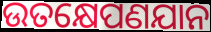
ଉତକ୍ଷେପଣଯାନ